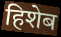
हिशेब